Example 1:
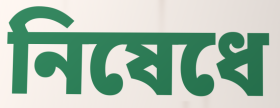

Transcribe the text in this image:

নিষেধে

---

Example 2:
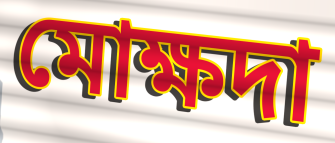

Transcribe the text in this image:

মোক্ষদা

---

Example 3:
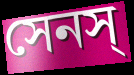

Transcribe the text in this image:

সেনস্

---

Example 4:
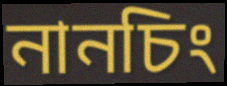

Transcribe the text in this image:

নানচিং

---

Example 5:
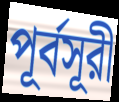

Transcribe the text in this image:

পূর্বসূরী